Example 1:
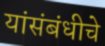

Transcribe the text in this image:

यांसंबंधीचे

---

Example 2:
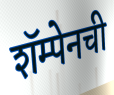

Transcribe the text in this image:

शॅम्पेनची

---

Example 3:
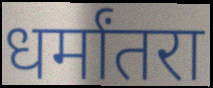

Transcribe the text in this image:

धर्मांतरा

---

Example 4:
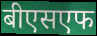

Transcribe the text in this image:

बीएसएफ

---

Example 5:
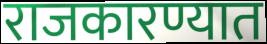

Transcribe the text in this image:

राजकारण्यात